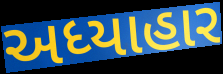
અધ્યાહાર